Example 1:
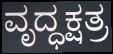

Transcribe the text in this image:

ವೃದ್ಧಕ್ಷತ್ರ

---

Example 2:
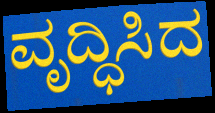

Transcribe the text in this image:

ವೃದ್ಧಿಸಿದ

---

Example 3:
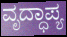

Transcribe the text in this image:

ವೃದ್ಧಾಪ್ಯ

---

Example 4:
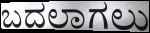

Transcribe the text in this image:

ಬದಲಾಗಲು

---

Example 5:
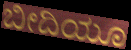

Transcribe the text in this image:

ಬೀದಿಯೂ